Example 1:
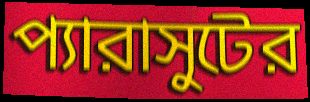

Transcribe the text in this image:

প্যারাসুটের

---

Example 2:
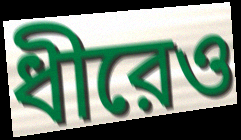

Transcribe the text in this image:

ধীরেও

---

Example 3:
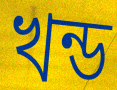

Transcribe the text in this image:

খন্ড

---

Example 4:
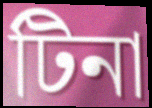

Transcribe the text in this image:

টিনা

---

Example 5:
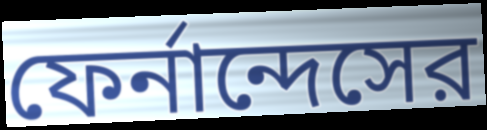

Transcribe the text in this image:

ফের্নান্দেসের